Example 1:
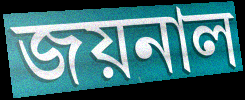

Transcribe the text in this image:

জয়নাল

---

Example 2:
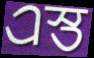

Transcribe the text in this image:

এস্ত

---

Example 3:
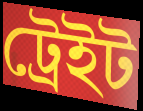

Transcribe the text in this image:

ট্রেইট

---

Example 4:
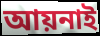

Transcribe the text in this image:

আয়নাই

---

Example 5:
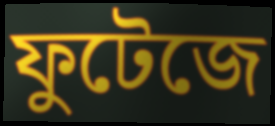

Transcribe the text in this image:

ফুটেজে